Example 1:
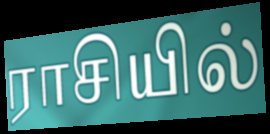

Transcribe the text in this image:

ராசியில்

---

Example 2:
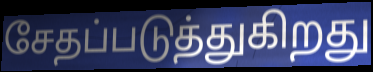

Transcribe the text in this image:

சேதப்படுத்துகிறது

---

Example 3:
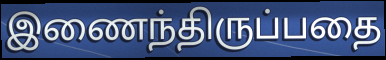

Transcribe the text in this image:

இணைந்திருப்பதை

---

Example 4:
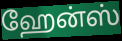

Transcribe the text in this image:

ஹேன்ஸ்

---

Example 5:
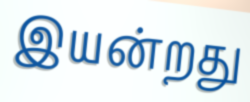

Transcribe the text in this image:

இயன்றது